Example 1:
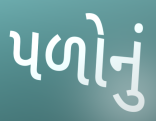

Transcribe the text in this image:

પળોનું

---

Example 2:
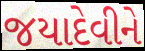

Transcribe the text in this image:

જયાદેવીને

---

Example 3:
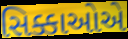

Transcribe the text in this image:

સિક્કાઓએ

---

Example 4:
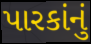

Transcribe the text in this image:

પારકાંનું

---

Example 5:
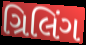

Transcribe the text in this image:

ગ્રિલિંગ